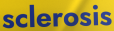
sclerosis